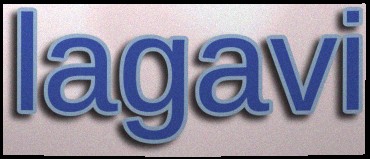
lagavi